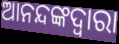
ଆନନ୍ଦଙ୍କଦ୍ୱାରା